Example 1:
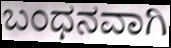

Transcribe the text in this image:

ಬಂಧನವಾಗಿ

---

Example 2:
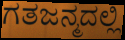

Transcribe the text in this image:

ಗತಜನ್ಮದಲ್ಲಿ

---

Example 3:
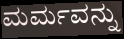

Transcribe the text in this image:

ಮರ್ಮವನ್ನು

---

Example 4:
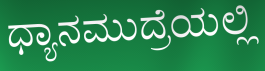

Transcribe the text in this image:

ಧ್ಯಾನಮುದ್ರೆಯಲ್ಲಿ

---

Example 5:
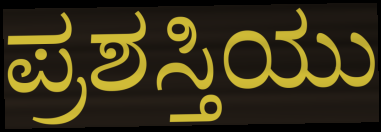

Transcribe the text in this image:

ಪ್ರಶಸ್ತಿಯು